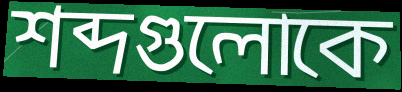
শব্দগুলোকে